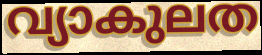
വ്യാകുലത